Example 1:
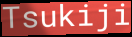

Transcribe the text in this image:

Tsukiji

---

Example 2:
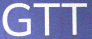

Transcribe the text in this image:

GTT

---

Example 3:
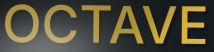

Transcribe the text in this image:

OCTAVE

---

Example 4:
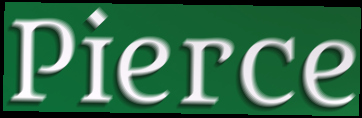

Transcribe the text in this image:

Pierce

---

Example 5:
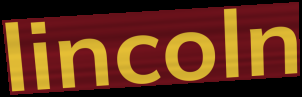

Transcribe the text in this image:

lincoln